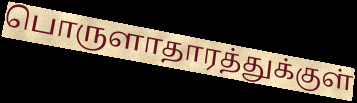
பொருளாதாரத்துக்குள்